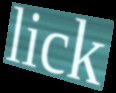
lick